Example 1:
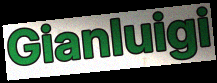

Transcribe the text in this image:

Gianluigi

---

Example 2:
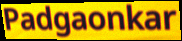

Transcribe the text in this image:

Padgaonkar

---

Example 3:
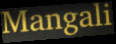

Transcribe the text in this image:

Mangali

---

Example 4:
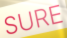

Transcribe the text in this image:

SURE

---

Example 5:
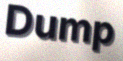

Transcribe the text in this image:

Dump